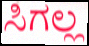
ಸಿಗಲ್ಲ